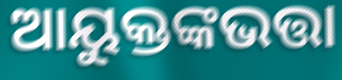
ଆୟୁକ୍ତଙ୍କଭତ୍ତା